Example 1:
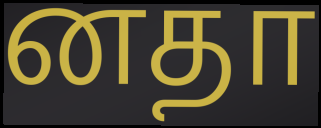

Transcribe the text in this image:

னதா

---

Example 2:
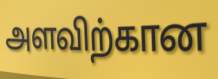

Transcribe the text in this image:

அளவிற்கான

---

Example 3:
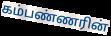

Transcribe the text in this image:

கம்பண்ணரின்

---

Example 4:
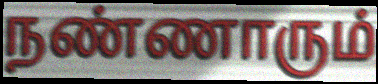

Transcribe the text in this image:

நண்ணாரும்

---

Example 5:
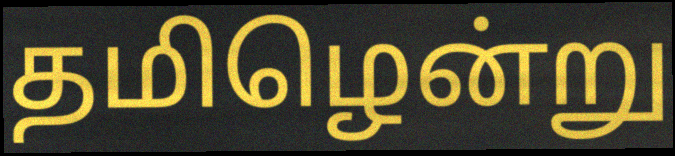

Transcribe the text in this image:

தமிழென்று